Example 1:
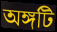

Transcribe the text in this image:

অঙ্গটি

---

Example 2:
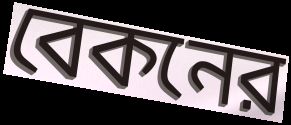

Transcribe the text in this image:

বেকনের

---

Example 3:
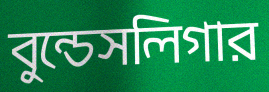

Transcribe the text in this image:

বুন্ডেসলিগার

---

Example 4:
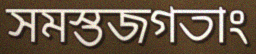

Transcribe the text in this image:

সমস্তজগতাং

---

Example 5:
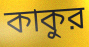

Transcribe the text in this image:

কাকুর